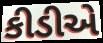
કીડીએ